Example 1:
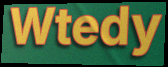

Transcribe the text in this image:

Wtedy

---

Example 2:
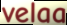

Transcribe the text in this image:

velaa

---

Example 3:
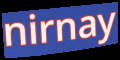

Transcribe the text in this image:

nirnay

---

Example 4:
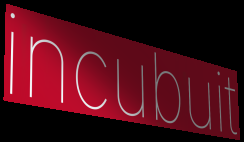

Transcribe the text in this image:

incubuit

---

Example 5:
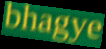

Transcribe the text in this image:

bhagye